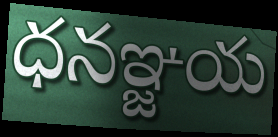
ధనఞ్జయ